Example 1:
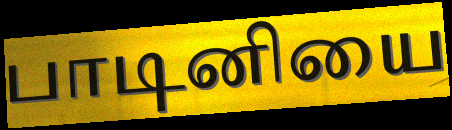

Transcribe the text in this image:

பாடினியை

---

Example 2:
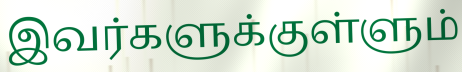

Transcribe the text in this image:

இவர்களுக்குள்ளும்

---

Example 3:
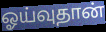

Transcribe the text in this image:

ஓய்வுதான்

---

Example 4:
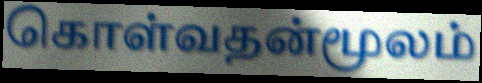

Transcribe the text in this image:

கொள்வதன்மூலம்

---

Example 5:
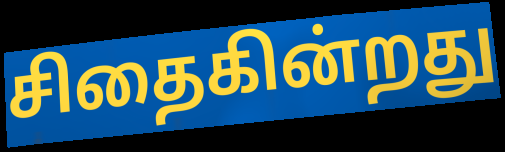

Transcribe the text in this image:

சிதைகின்றது